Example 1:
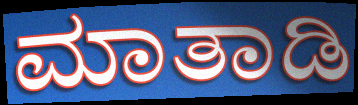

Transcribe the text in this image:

ಮಾತಾಡಿ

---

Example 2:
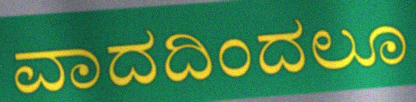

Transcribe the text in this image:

ವಾದದಿಂದಲೂ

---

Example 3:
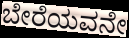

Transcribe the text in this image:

ಬೇರೆಯವನೇ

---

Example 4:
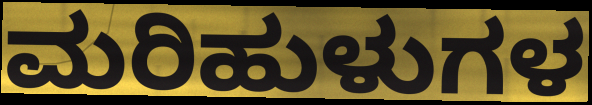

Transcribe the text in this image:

ಮರಿಹುಳುಗಳ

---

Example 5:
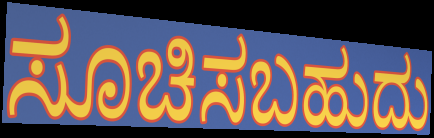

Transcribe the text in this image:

ಸೂಚಿಸಬಹುದು